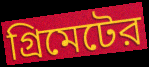
গ্রিমেটের